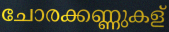
ചോരക്കണ്ണുകള്